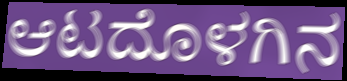
ಆಟದೊಳಗಿನ